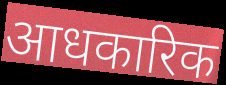
आधकारिक